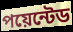
পয়েন্টেড